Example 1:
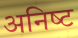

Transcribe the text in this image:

अनिष्‍ट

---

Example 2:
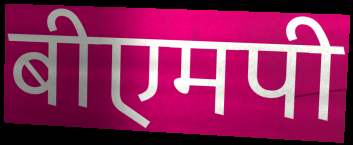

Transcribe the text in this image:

बीएमपी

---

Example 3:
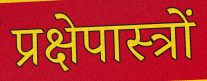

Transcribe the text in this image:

प्रक्षेपास्त्रों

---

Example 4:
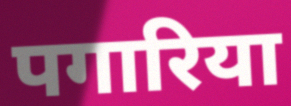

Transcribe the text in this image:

पगारिया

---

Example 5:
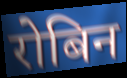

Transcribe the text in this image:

रोबिन